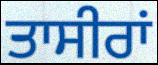
ਤਾਸੀਰਾਂ